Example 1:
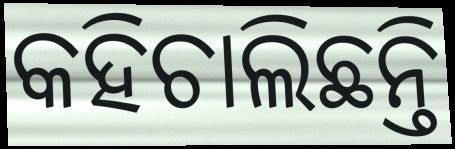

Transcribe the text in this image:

କହିଚାଲିଛନ୍ତି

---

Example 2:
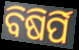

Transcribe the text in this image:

ବିଷିର୍ପି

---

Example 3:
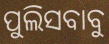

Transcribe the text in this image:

ପୁଲିସବାବୁ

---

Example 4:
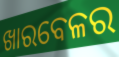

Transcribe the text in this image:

ଖାରବେଳର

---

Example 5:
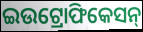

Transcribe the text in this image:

ଇଉଟ୍ରୋଫିକେସନ୍